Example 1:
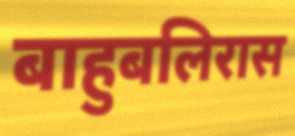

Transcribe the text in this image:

बाहुबलिरास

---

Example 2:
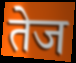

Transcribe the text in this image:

तेज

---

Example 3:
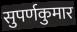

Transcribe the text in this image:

सुपर्णकुमार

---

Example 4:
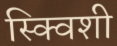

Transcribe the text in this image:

स्क्विशी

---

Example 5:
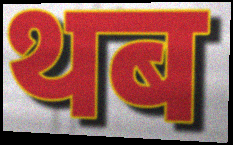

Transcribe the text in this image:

थब